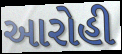
આરોહી